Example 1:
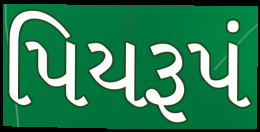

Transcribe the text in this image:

પિયરૂપં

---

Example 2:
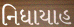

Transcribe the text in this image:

નિધાયાહ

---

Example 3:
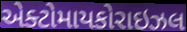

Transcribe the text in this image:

એક્ટોમાયકોરાઇઝલ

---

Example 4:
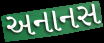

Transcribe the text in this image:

અનાનસ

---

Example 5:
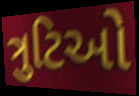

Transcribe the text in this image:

ત્રુટિઓ